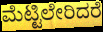
ಮೆಟ್ಟಿಲೇರಿದರೆ